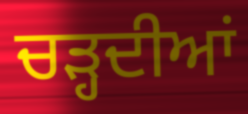
ਚੜ੍ਹਦੀਆਂ